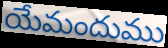
యేమందుము